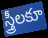
స్త్రీలకూ